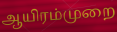
ஆயிரம்முறை